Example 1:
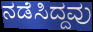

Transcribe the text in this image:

ನಡೆಸಿದ್ದವು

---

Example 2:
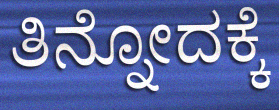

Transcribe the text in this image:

ತಿನ್ನೋದಕ್ಕೆ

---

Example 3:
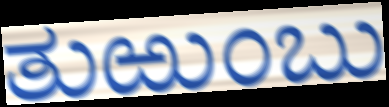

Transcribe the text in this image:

ತುಱುಂಬು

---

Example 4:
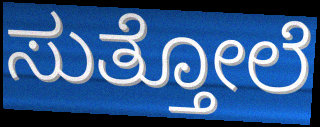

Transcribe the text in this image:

ಸುತ್ತೋಲೆ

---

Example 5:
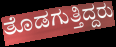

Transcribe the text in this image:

ತೊಡಗುತ್ತಿದ್ದರು